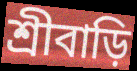
শ্রীবাড়ি